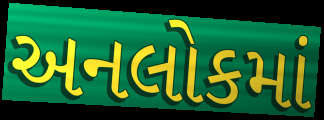
અનલોકમાં